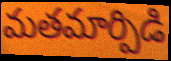
మతమార్పిడి